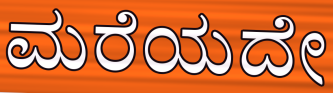
ಮರೆಯದೇ